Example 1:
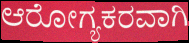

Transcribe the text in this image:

ಆರೋಗ್ಯಕರವಾಗಿ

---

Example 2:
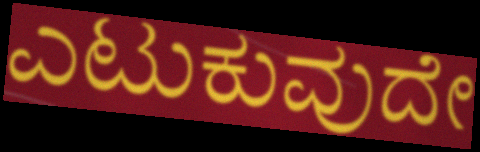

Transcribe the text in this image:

ಎಟುಕುವುದೇ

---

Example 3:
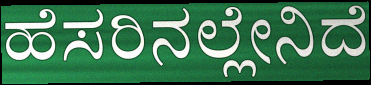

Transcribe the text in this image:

ಹೆಸರಿನಲ್ಲೇನಿದೆ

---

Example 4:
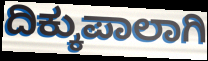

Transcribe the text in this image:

ದಿಕ್ಕುಪಾಲಾಗಿ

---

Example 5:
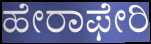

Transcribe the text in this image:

ಹೇರಾಫೇರಿ